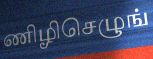
ணிழிசெழுங்